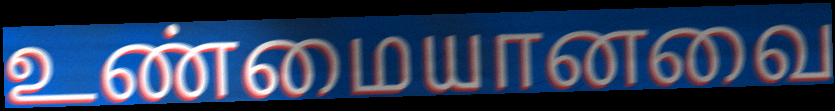
உண்மையானவை